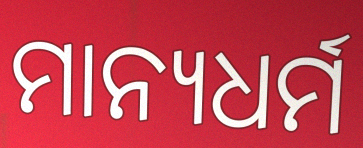
ମାନ୍ୟଧର୍ମ